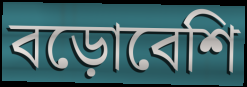
বড়োবেশি